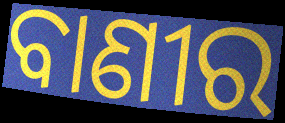
ବାଣୀର